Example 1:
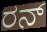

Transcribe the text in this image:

ರನ್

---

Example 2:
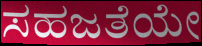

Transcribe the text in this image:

ಸಹಜತೆಯೇ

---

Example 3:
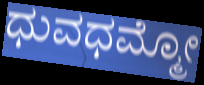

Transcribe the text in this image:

ಧುವಧಮ್ಮೋ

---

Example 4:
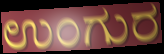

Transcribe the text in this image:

ಉಂಗುರ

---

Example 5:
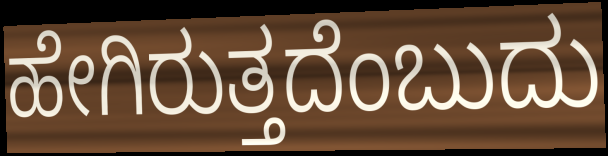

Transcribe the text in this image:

ಹೇಗಿರುತ್ತದೆಂಬುದು